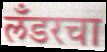
लँडरचा